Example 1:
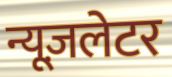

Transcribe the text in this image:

न्यूज़लेटर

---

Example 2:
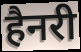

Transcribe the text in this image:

हैनरी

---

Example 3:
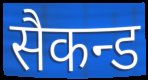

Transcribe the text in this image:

सैकन्ड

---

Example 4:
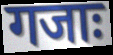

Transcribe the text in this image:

गजाः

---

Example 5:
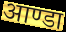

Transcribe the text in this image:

आण्डा